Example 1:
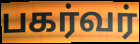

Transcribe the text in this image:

பகர்வர்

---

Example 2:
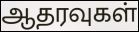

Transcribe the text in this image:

ஆதரவுகள்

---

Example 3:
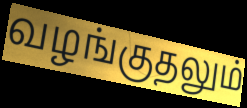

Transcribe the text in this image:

வழங்குதலும்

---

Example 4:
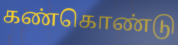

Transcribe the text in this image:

கண்கொண்டு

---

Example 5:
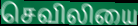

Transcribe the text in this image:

செவிலியை